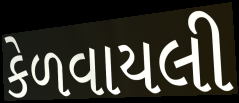
કેળવાયલી